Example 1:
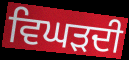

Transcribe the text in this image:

ਵਿਘੜਦੀ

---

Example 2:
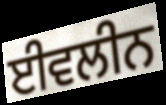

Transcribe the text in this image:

ਈਵਲੀਨ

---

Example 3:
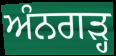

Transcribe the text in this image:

ਅੰਨਗੜ੍ਹ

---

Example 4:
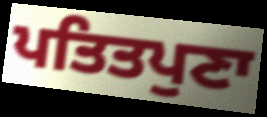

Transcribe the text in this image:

ਪਤਿਤਪੁਣਾ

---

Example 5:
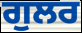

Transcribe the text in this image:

ਗੁਲਰ